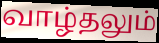
வாழ்தலும்